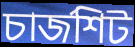
চার্জশিট